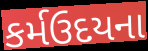
કર્મઉદયના